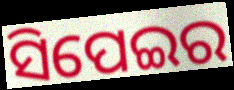
ସିପେଇର